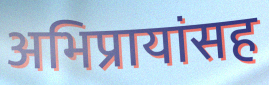
अभिप्रायांसह